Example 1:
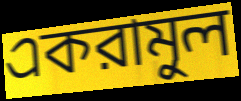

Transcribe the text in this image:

একরামুল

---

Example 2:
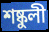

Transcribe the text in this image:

শষ্কুলী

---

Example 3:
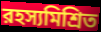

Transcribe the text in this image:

রহস্যমিশ্রিত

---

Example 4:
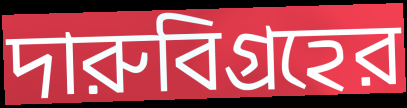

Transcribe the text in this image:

দারুবিগ্রহের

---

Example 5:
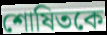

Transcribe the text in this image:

শোষিতকে